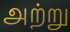
அற்று